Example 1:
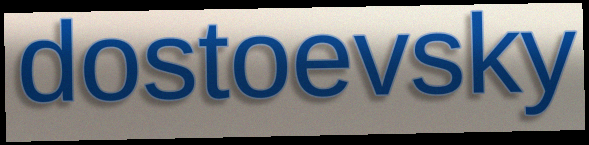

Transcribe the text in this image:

dostoevsky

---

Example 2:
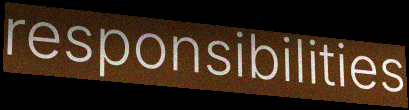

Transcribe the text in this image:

responsibilities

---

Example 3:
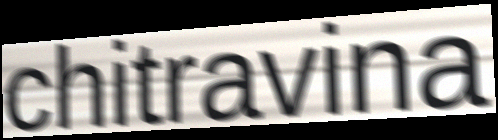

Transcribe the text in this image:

chitravina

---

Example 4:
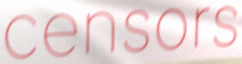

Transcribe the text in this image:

censors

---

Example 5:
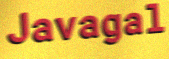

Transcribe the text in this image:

Javagal